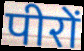
पीरों